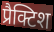
प्रैक्टिश